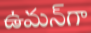
ఉమన్‌గా